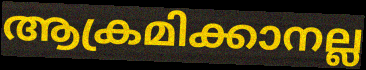
ആക്രമിക്കാനല്ല